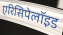
एरिसिपेलॉइड